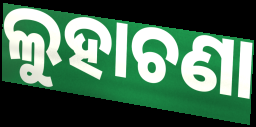
ଲୁହାଚଣା